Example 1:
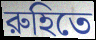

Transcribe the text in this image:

রুহিতে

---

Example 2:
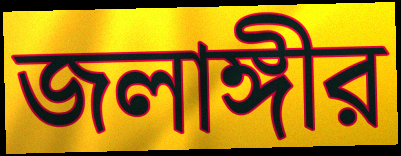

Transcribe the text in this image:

জলাঙ্গীর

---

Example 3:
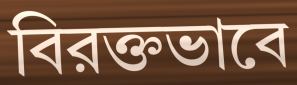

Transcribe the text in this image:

বিরক্তভাবে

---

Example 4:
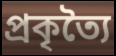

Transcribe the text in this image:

প্রকৃত্যৈ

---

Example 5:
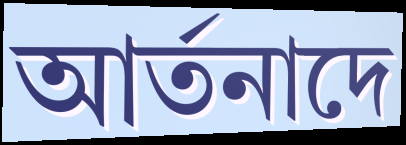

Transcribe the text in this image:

আর্তনাদে